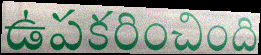
ఉపకరించింది